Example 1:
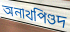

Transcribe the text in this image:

অনাথপিণ্ডদ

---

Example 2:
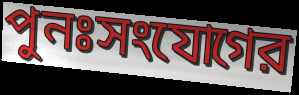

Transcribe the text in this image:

পুনঃসংযোগের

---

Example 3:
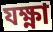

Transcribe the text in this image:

যক্ষ্ণা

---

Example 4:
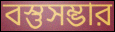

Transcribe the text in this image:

বস্তুসম্ভার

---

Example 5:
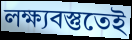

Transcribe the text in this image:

লক্ষ্যবস্তুতেই